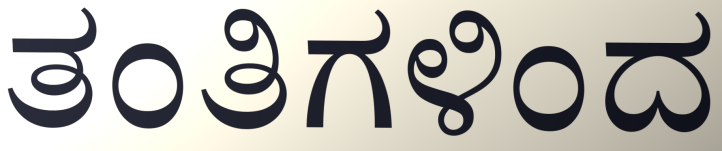
ತಂತಿಗಳಿಂದ